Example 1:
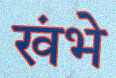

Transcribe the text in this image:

खंभे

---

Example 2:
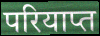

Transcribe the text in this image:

परियाप्त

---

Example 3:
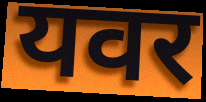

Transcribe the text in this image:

यवर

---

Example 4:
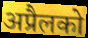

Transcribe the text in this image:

अप्रैलको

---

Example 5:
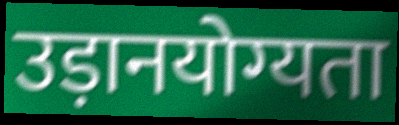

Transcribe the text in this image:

उड़ानयोग्यता